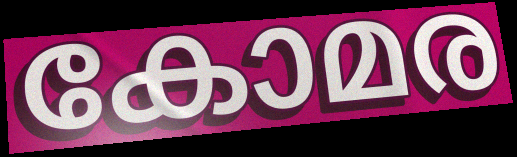
കോമര